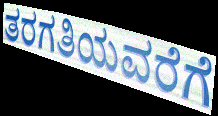
ತರಗತಿಯವರೆಗೆ